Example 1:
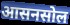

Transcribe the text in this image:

आसनसोल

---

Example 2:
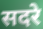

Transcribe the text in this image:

सदरे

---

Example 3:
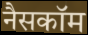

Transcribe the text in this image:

नैसकॉम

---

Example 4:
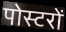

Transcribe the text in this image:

पोस्टरों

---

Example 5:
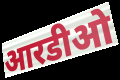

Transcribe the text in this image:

आरडीओ